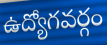
ఉద్యోగవర్గం